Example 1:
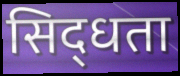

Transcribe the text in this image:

सिद्धता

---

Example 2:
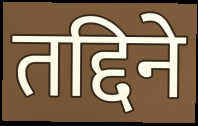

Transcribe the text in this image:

तद्दिने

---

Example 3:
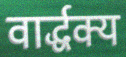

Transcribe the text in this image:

वार्द्धक्य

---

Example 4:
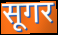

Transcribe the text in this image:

सूगर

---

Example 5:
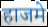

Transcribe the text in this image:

हाजमे